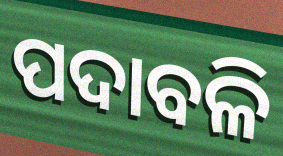
ପଦାବଳି